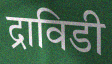
द्राविडी